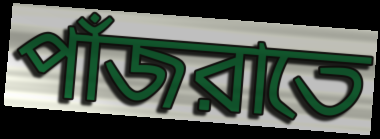
পাঁজরাতে